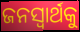
ଜନସ୍ବାର୍ଥକୁ